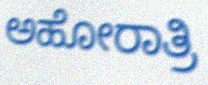
ಅಹೋರಾತ್ರಿ